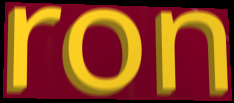
ron